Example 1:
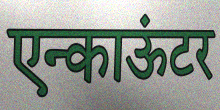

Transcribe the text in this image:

एन्काऊंटर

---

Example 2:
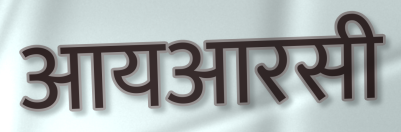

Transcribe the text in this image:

आयआरसी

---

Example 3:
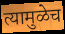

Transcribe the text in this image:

त्यामुळेच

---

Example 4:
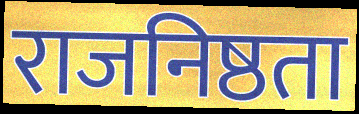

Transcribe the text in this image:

राजनिष्ठता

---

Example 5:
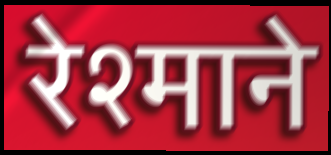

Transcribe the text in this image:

रेश्माने